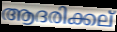
ആദരിക്കല്